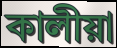
কালীয়া